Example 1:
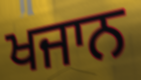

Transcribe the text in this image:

ਖਜਾਨ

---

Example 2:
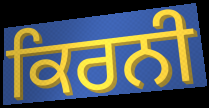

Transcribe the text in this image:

ਕਿਰਨੀ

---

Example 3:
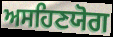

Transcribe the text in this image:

ਅਸਹਿਣਯੋਗ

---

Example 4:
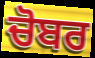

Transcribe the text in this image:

ਚੋਬਰ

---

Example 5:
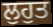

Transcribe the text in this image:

ਲੁਹੁਤ